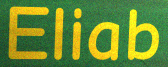
Eliab